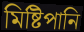
মিষ্টিপানি